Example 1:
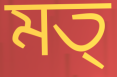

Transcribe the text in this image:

মত্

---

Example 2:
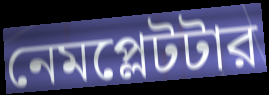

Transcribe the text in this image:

নেমপ্লেটটার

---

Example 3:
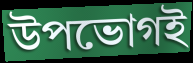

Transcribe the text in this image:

উপভোগই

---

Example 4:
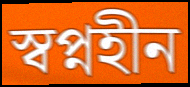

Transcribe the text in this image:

স্বপ্নহীন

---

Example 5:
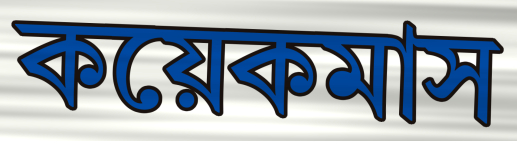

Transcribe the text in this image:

কয়েকমাস